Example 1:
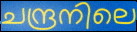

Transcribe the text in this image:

ചന്ദ്രനിലെ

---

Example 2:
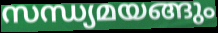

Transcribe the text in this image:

സന്ധ്യമയങ്ങും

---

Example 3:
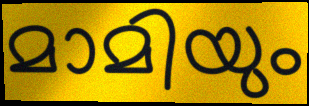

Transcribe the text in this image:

മാമിയും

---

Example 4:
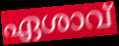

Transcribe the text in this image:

ഏശാവ്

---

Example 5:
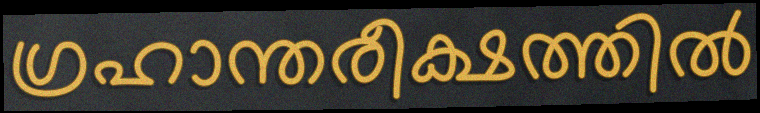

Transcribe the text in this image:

ഗ്രഹാന്തരീക്ഷത്തിൽ